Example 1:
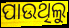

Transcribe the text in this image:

ପାଉଥିଲୁ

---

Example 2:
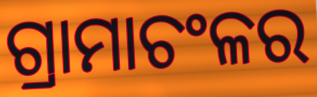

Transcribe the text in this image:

ଗ୍ରାମାଚଂଳର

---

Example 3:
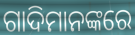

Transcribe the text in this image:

ଗାଦିମାନଙ୍କରେ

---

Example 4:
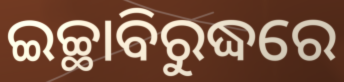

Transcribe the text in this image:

ଇଚ୍ଛାବିରୁଦ୍ଧରେ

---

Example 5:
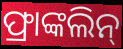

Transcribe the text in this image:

ଫ୍ରାଙ୍କଲିନ୍